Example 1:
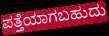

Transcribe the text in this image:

ಪತ್ತೆಯಾಗಬಹುದು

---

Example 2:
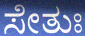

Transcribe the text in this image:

ಸೇತುಃ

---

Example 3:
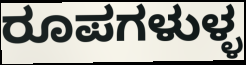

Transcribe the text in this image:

ರೂಪಗಳುಳ್ಳ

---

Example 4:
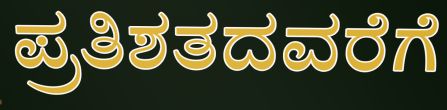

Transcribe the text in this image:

ಪ್ರತಿಶತದವರೆಗೆ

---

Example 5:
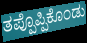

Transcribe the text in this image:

ತಪ್ಪೊಪ್ಪಿಕೊಂಡು